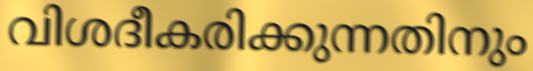
വിശദീകരിക്കുന്നതിനും